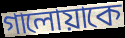
গালোয়াকে